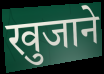
खुजाने